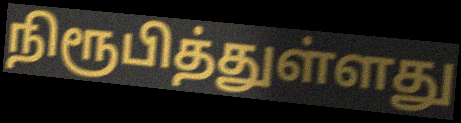
நிரூபித்துள்ளது